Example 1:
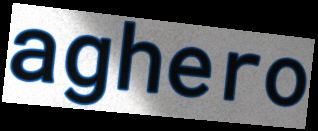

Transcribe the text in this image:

aghero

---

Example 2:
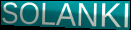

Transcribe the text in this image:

SOLANKI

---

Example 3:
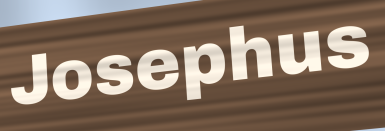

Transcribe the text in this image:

Josephus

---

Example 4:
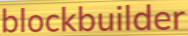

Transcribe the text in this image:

blockbuilder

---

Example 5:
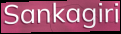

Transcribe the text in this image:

Sankagiri